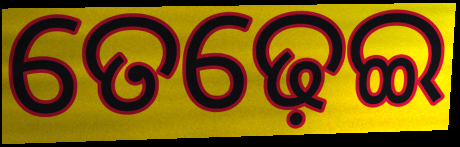
ତେଢ଼େଇ